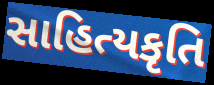
સાહિત્યકૃતિ